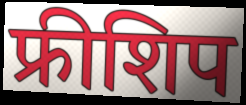
फ्रीशिप